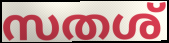
സതശ്